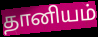
தானியம்